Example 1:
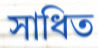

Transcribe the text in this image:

সাধিত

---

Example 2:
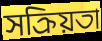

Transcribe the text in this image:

সক্ৰিয়তা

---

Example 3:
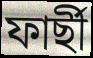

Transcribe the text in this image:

ফাৰ্ছী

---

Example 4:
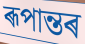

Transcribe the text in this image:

ৰূপান্তৰ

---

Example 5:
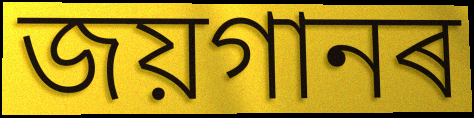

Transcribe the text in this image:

জয়গানৰ